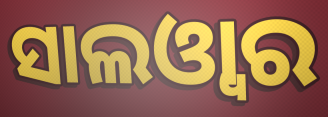
ସାଲଓ୍ଵାର